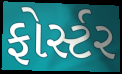
ફોર્સ્ટર